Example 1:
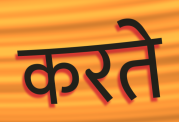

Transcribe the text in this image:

करते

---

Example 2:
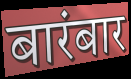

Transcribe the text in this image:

बारंबार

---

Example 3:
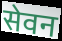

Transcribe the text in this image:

सेवन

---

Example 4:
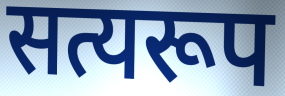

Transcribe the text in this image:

सत्यरूप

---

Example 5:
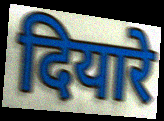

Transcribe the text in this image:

दियारे